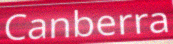
Canberra